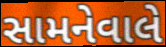
સામનેવાલે